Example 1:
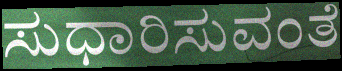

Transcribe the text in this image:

ಸುಧಾರಿಸುವಂತೆ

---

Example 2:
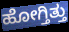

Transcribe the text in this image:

ಹೋಗ್ತಿತ್ತು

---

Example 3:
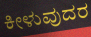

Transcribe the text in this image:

ಕೀಳುವುದರ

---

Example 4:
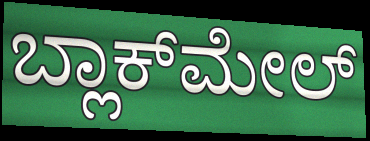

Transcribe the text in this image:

ಬ್ಲಾಕ್‌ಮೇಲ್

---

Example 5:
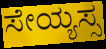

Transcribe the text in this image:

ಸೇಯ್ಯಸ್ಸ